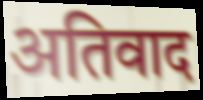
अतिवाद